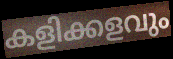
കളിക്കളവും